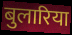
बुलारिया